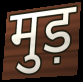
मुड़